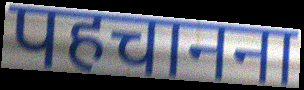
पहचानना